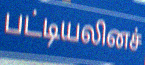
பட்டியலினச்